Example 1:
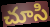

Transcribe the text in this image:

చూసి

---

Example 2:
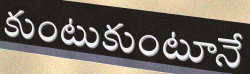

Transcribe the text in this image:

కుంటుకుంటూనే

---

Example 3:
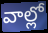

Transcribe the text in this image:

వాల్లో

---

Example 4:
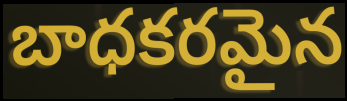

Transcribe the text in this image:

బాధకరమైన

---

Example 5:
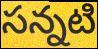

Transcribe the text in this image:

సన్నటి